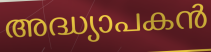
അദ്ധ്യാപകൻ